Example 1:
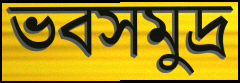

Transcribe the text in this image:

ভবসমুদ্র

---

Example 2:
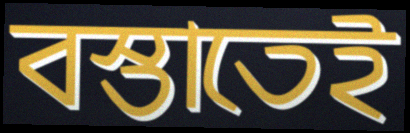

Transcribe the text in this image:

বস্তাতেই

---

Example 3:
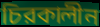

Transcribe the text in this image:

চিরকালীন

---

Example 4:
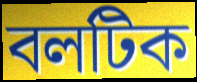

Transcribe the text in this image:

বলটিক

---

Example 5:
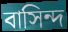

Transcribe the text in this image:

বাসিন্দ